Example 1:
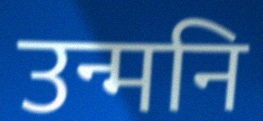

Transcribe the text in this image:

उन्मनि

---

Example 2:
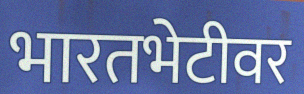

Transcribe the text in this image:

भारतभेटीवर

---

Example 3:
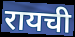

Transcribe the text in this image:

रायची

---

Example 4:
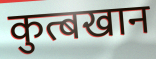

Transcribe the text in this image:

कुत्बखान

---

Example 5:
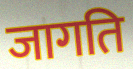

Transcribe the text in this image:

जागति